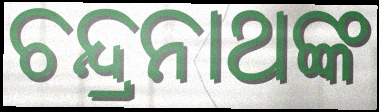
ଚନ୍ଦ୍ରନାଥଙ୍କ